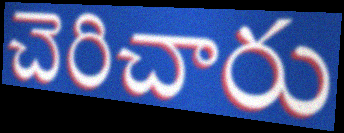
చెరిచారు